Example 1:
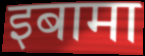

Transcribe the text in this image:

इबामा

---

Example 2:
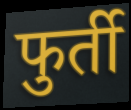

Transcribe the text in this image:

फुर्ती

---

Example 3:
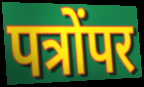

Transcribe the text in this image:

पत्रोंपर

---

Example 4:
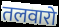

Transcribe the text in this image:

तलवारो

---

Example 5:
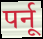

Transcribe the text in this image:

पर्नू